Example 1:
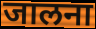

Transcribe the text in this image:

जालना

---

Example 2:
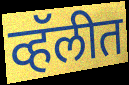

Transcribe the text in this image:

व्हॅलीत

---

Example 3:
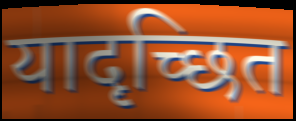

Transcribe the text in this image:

यादृच्छित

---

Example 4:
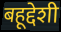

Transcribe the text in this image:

बहूद्देशी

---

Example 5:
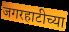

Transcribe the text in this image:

जगरहाटीच्या